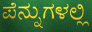
ಪೆನ್ನುಗಳಲ್ಲಿ